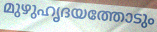
മുഴുഹൃദയത്തോടും